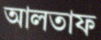
আলতাফ